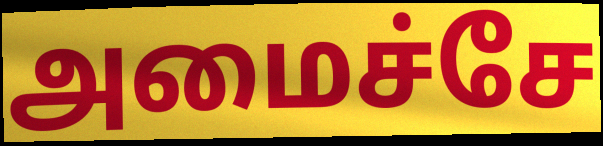
அமைச்சே